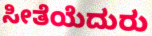
ಸೀತೆಯೆದುರು